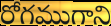
రోగముగాని